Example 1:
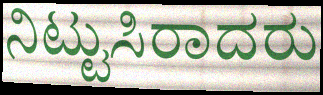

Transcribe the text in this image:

ನಿಟ್ಟುಸಿರಾದರು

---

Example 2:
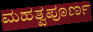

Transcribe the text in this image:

ಮಹತ್ವಪೂರ್ಣ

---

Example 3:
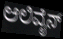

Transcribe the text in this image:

ಆಲಿವೈನ್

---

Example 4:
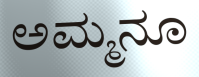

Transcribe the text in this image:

ಅಮ್ಮನೂ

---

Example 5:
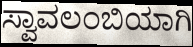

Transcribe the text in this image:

ಸ್ವಾವಲಂಬಿಯಾಗಿ